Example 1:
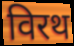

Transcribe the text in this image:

विरथ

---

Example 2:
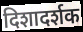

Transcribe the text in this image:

दिशादर्शक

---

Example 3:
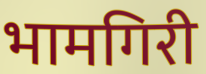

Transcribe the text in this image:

भामगिरी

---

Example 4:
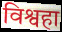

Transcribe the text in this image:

विश्वहा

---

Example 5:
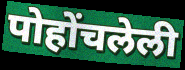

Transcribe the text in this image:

पोहोंचलेली